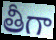
తీగా